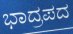
ಭಾದ್ರಪದ